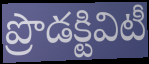
ప్రొడక్టివిటీ